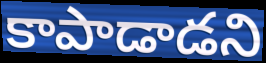
కాపాడాడని